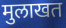
मुलाखत